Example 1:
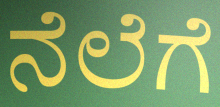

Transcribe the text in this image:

ನೆಲೆಗೆ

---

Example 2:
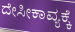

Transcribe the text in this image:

ದೇಸೀಕಾವ್ಯಕ್ಕೆ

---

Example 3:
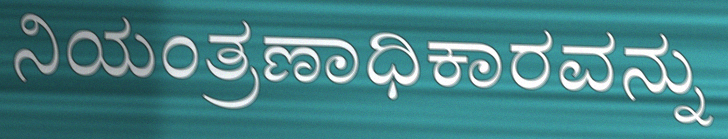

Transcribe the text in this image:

ನಿಯಂತ್ರಣಾಧಿಕಾರವನ್ನು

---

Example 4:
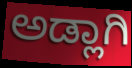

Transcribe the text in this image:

ಅಡ್ಲಾಗಿ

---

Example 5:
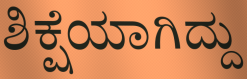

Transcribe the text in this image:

ಶಿಕ್ಷೆಯಾಗಿದ್ದು